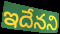
ఇదేనని